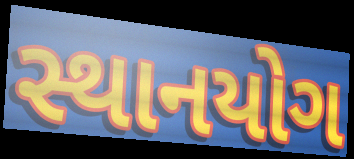
સ્થાનયોગ